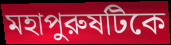
মহাপুরুষটিকে